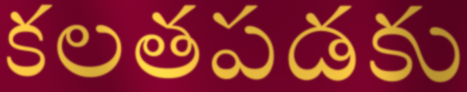
కలతపడకు